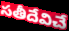
సతీదేవిచే